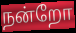
நன்றோ